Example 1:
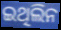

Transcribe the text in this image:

ଇଥିଲିନ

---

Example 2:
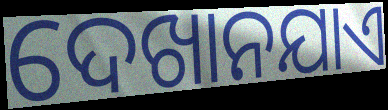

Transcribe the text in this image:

ଦେଖାନଯାଏ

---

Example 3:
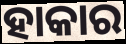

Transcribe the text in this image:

ହାକାର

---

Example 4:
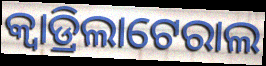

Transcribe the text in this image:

କ୍ୱାଡ୍ରିଲାଟେରାଲ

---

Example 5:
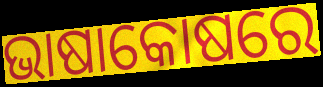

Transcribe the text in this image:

ଭାଷାକୋଷରେ